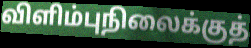
விளிம்புநிலைக்குத்